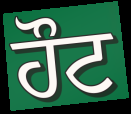
ਹੌਟ